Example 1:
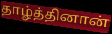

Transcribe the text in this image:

தாழ்த்தினான்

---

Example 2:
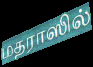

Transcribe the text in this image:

மதராஸில்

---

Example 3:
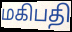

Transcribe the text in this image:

மகிபதி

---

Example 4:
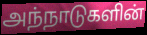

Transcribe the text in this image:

அந்நாடுகளின்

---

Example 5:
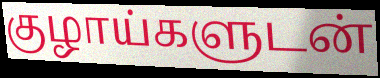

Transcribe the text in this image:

குழாய்களுடன்